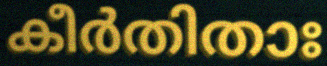
കീർതിതാഃ